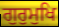
ਗੁਰੁਮੁਖਿ